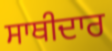
ਸਾਥੀਦਾਰ